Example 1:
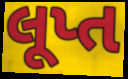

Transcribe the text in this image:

લૂપ્ત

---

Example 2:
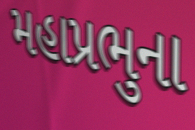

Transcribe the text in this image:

મહાપ્રભુના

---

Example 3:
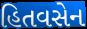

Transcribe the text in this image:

હિતવસેન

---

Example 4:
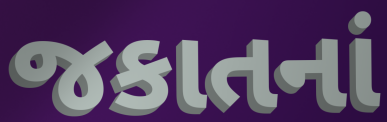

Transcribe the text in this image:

જકાતનાં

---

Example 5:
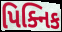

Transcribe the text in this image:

પિક્નિક